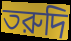
তরুদি